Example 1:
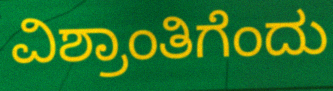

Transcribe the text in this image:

ವಿಶ್ರಾಂತಿಗೆಂದು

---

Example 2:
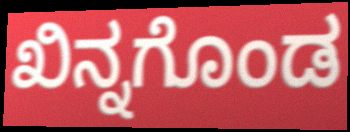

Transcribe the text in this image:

ಖಿನ್ನಗೊಂಡ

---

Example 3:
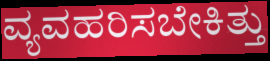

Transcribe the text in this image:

ವ್ಯವಹರಿಸಬೇಕಿತ್ತು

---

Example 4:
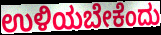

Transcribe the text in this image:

ಉಳಿಯಬೇಕೆಂದು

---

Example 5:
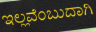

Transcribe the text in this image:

ಇಲ್ಲವೆಂಬುದಾಗಿ